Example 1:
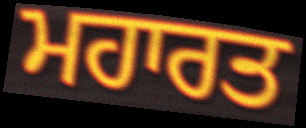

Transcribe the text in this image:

ਮਹਾਰਤ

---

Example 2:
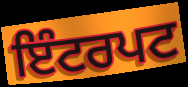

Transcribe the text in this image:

ਇੰਟਰਪਟ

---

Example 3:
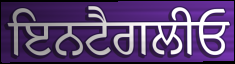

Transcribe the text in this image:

ਇਨਟੈਗਲੀਓ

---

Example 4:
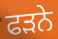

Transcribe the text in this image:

ਫੜਨੇ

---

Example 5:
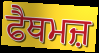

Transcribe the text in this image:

ਫੈਥਮਜ਼